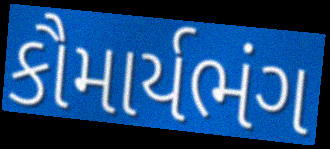
કૌમાર્યભંગ